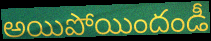
అయిపోయిందండీ